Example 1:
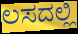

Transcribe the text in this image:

ಲಸದಲ್ಲಿ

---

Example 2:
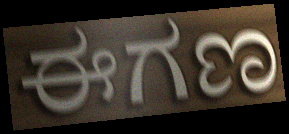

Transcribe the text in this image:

ಈಗಣ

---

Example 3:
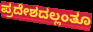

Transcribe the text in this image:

ಪ್ರದೇಶದಲ್ಲಂತೂ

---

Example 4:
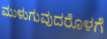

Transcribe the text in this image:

ಮುಳುಗುವುದರೊಳಗೆ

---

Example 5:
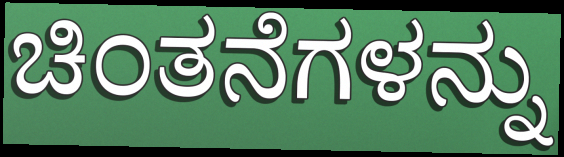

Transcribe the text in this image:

ಚಿಂತನೆಗಳನ್ನು